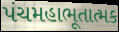
પંચમહાભૂતાત્મક